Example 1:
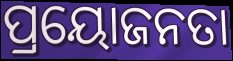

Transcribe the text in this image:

ପ୍ରୟୋଜନତା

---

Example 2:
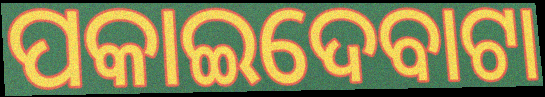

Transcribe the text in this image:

ପକାଇଦେବାଟା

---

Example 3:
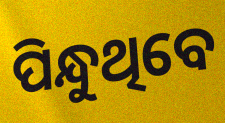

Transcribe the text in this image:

ପିନ୍ଧୁଥିବେ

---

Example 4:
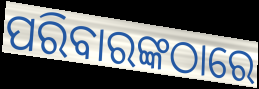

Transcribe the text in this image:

ପରିବାରଙ୍କଠାରେ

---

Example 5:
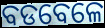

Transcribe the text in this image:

ବଡବେଳେ